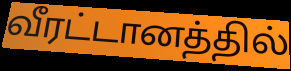
வீரட்டானத்தில்